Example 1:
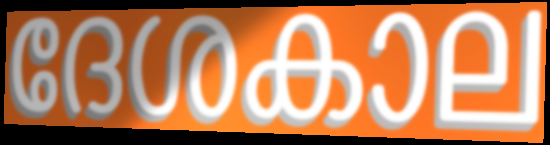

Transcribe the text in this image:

ദേശകാല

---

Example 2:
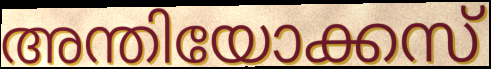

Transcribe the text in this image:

അന്തിയോക്കസ്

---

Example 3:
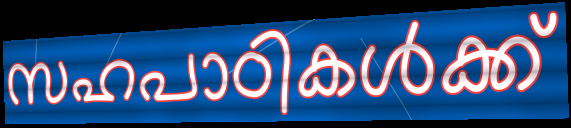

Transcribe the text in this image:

സഹപാഠികൾക്ക്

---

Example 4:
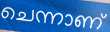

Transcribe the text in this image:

ചെന്നാണ്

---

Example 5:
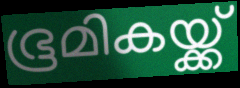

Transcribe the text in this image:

ഭൂമികയ്ക്ക്